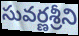
సువర్ణశ్రీని